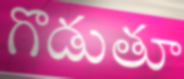
గొడుతూ